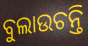
ବୁଲାଉଚନ୍ତି